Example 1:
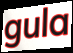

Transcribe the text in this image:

gula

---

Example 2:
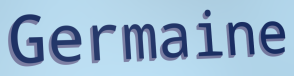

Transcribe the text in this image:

Germaine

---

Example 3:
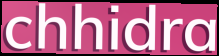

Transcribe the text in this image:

chhidra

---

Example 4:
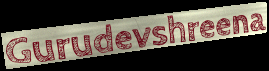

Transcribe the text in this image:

Gurudevshreena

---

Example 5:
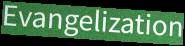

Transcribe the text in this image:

Evangelization